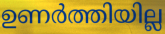
ഉണർത്തിയില്ല